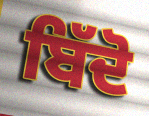
ਬਿੱਦੋ